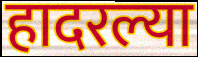
हादरल्या